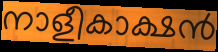
നാളീകാക്ഷൻ